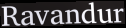
Ravandur